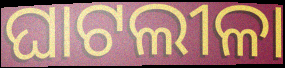
ଘାଟଲୀଳା